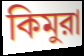
কিমুরা